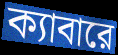
ক্যাবারে